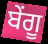
ਬੇਂਗੂ